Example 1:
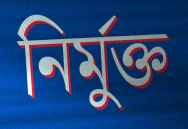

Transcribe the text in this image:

নির্মুক্ত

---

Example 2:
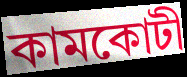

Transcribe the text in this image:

কামকোটী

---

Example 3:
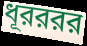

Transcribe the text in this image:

ধূরররর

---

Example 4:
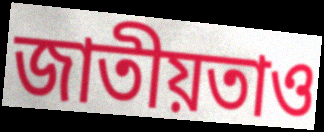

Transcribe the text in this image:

জাতীয়তাও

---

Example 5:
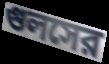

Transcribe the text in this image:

গুলসের